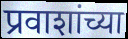
प्रवाशांच्या